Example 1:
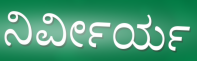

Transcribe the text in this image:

ನಿರ್ವೀರ್ಯ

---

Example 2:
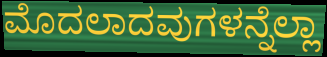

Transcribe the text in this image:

ಮೊದಲಾದವುಗಳನ್ನೆಲ್ಲಾ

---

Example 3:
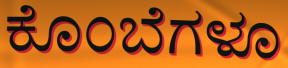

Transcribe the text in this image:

ಕೊಂಬೆಗಳೂ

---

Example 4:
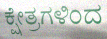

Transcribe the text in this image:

ಕ್ಷೇತ್ರಗಳಿಂದ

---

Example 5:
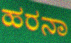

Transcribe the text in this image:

ಹರನಾ